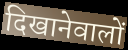
दिखानेवालों